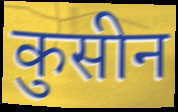
कुसीन